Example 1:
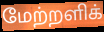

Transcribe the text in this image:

மேற்றளிக்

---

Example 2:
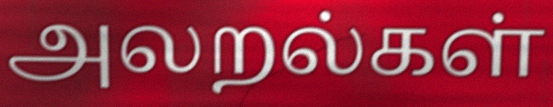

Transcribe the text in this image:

அலறல்கள்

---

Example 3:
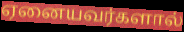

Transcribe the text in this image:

ஏனையவர்களால்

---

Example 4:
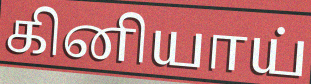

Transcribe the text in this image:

கினியாய்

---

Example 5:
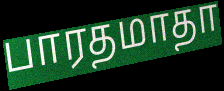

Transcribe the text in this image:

பாரதமாதா